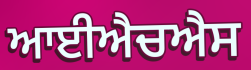
ਆਈਐਚਐਸ